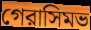
গেরাসিমভ